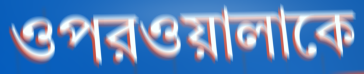
ওপরওয়ালাকে